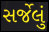
સર્જેલું